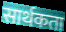
सार्थकता